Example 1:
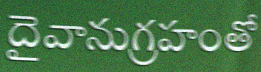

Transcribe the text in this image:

దైవానుగ్రహంతో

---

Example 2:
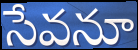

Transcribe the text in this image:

సేవనూ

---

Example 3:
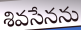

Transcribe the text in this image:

శివసేనను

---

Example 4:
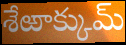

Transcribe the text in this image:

శేఱాక్కుమ్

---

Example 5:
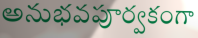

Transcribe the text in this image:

అనుభవపూర్వకంగా